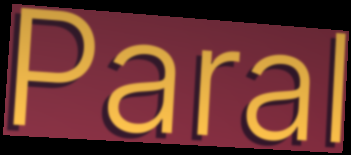
Paral